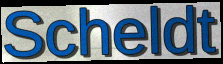
Scheldt